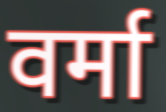
वर्मा